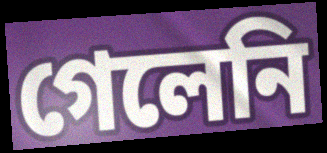
গেলেনি